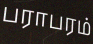
பராபரம்